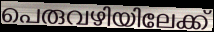
പെരുവഴിയിലേക്ക്